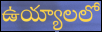
ఉయ్యాలలో